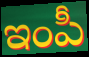
ఇంపీ